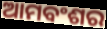
ଆମବଂଶର